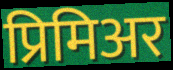
प्रिमिअर